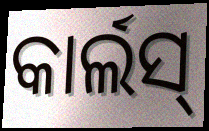
କାର୍ଲସ୍